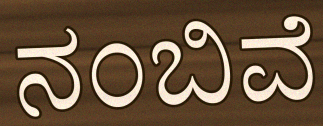
ನಂಬಿವೆ